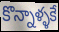
కొన్నాళ్ళకే